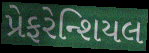
પ્રેફરેન્શિયલ